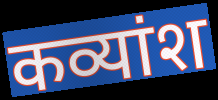
कव्यांश